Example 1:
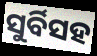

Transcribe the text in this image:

ସୁର୍ବିସହ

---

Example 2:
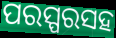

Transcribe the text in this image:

ପରସ୍ପରସହ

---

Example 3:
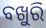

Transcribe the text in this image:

ବଖୁରି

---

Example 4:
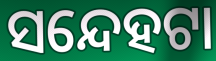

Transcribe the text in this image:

ସନ୍ଦେହଟା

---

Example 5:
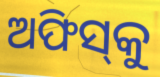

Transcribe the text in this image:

ଅଫିସ୍‌କୁ